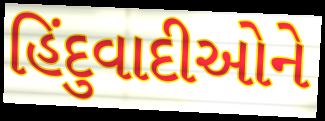
હિંદુવાદીઓને